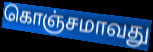
கொஞ்சமாவது